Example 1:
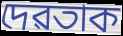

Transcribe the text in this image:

দেৱতাক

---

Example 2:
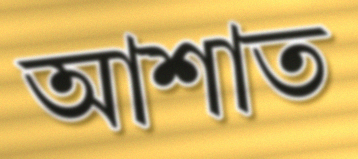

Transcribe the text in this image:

আশাত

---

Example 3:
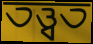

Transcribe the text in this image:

তত্ত্বত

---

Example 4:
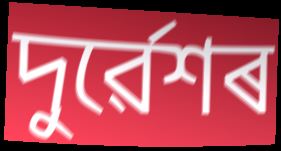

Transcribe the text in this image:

দুৰ্ৱেশৰ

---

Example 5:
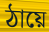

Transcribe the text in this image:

ঠায়ে